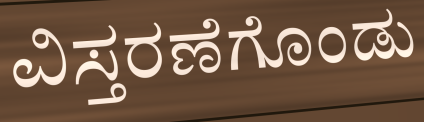
ವಿಸ್ತರಣೆಗೊಂಡು